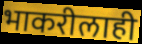
भाकरीलाही